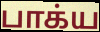
பாக்ய